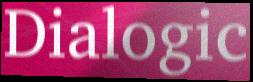
Dialogic